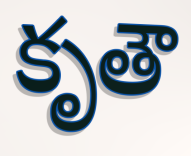
కృతౌ